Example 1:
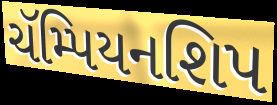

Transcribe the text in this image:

ચૅમ્પિયનશિપ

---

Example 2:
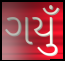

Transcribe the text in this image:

ગયુઁ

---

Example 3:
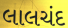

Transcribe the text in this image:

લાલચંદ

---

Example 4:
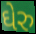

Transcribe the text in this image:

ઘેરુ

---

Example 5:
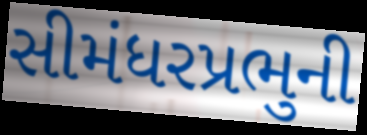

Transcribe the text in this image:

સીમંધરપ્રભુની